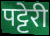
पट्टेरी